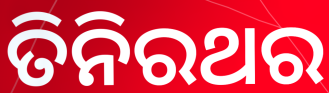
ତିନିରଥର